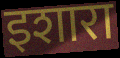
इशारा